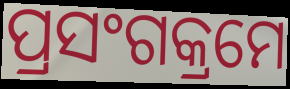
ପ୍ରସଂଗକ୍ରମେ